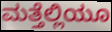
ಮತ್ತೆಲ್ಲಿಯೂ